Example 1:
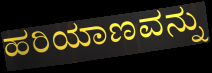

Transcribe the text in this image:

ಹರಿಯಾಣವನ್ನು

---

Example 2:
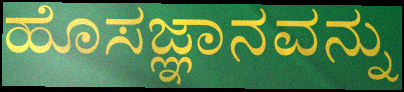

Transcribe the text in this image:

ಹೊಸಜ್ಞಾನವನ್ನು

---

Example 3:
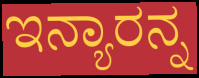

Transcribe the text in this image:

ಇನ್ಯಾರನ್ನ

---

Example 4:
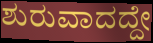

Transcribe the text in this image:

ಶುರುವಾದದ್ದೇ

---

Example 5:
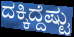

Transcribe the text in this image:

ದಕ್ಕಿದ್ದೆಷ್ಟು